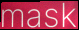
mask